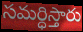
సమర్ధిస్తారు